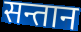
सन्तान